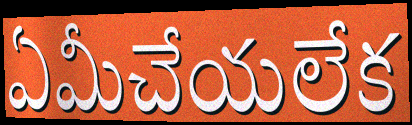
ఏమీచేయలేక